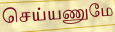
செய்யணுமே